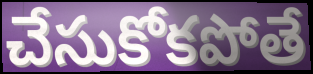
చేసుకోకపోతే